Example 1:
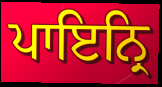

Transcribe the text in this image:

ਪਾਇਨ੍ਰਿ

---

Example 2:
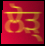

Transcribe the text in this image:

ਲੋੜ੍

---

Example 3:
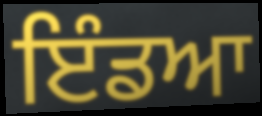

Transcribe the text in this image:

ਇੰਡਆ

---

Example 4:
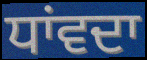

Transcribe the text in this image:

ਧਾਂਵਦਾ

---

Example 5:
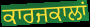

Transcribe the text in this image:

ਕਾਰਜਕਾਲਾਂ